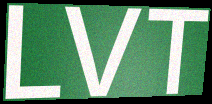
LVT